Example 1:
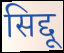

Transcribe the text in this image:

सिद्दू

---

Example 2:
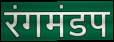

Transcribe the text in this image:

रंगमंडप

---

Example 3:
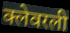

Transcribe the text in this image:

क्लेवरली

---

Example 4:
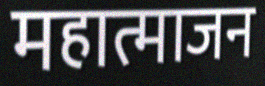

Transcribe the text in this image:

महात्माजन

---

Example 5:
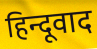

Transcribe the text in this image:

हिन्दूवाद